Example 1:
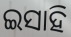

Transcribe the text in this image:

ଇସାହି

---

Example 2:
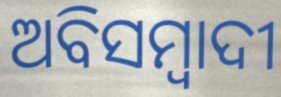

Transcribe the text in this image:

ଅବିସମ୍ବାଦୀ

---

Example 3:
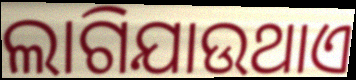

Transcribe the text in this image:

ଲାଗିଯାଉଥାଏ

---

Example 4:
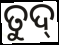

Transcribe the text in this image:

ତୁଦ୍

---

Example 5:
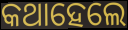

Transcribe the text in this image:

କଥାହେଲେ